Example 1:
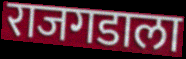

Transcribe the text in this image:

राजगडाला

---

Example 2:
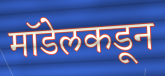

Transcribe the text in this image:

मॉडेलकडून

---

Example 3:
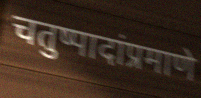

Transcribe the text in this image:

चतुष्पादांप्रमाणे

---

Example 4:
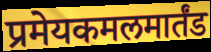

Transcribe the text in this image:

प्रमेयकमलमार्तंड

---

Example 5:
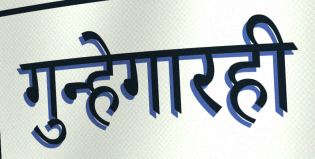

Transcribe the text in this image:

गुन्हेगारही